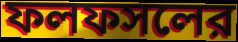
ফলফসলের